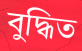
বুদ্ধিত